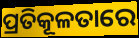
ପ୍ରତିକୂଳତାରେ